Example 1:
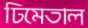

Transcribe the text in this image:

ঢিমেতাল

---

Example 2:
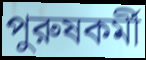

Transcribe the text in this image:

পুরুষকর্মী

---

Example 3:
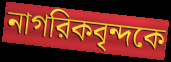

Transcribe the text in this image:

নাগরিকবৃন্দকে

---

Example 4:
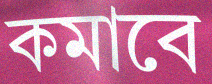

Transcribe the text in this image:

কমাবে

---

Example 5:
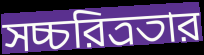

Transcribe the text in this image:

সচ্চরিত্রতার